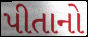
પીતાનો